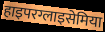
हाइपरग्लाइसेमिया